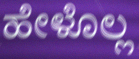
ಹೇಳೊಲ್ಲ